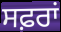
ਸਫ਼ਰਾਂ